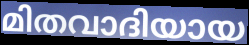
മിതവാദിയായ